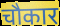
चौकार